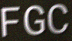
FGC